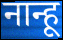
नान्हू